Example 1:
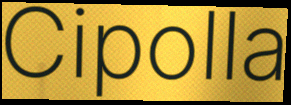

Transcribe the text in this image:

Cipolla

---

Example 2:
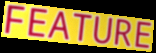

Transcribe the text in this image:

FEATURE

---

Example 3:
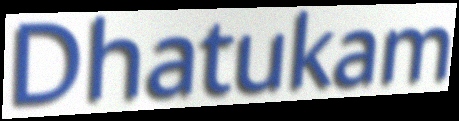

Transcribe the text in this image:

Dhatukam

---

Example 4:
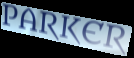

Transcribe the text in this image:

PARKER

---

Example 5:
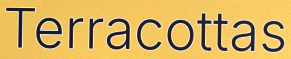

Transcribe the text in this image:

Terracottas